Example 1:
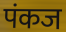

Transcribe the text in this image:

पंकज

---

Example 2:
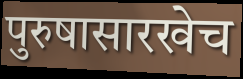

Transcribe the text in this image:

पुरुषासारखेच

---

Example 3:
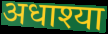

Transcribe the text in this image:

अधाश्या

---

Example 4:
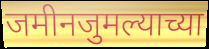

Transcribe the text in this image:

जमीनजुमल्याच्या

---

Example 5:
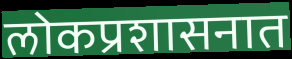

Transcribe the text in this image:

लोकप्रशासनात